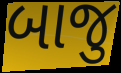
બાજુ